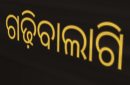
ଗଢ଼ିବାଲାଗି